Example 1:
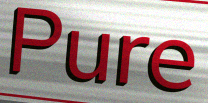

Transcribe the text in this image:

Pure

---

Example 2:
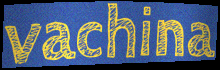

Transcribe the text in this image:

vachina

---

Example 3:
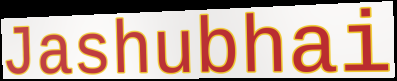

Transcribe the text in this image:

Jashubhai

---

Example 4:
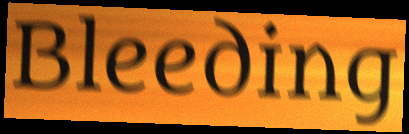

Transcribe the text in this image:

Bleeding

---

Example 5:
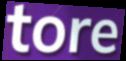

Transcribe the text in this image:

tore